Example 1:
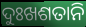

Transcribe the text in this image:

ଦୁଃଖଶତାନି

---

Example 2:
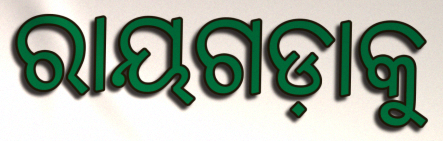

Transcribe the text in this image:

ରାୟଗଡ଼ାକୁ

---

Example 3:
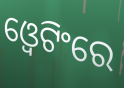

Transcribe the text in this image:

ଓ୍ୱେଟିଂରେ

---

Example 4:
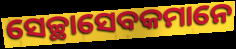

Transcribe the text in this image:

ସେଚ୍ଛାସେବକମାନେ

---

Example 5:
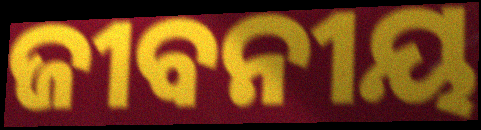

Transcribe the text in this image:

ଜୀବନୀୟ